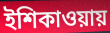
ইশিকাওয়ায়